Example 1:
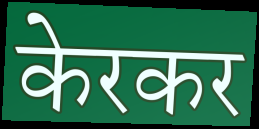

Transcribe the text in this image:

केरकर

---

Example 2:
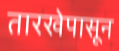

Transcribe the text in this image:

तारखेपासून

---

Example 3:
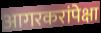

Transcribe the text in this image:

आगरकरांपेक्षा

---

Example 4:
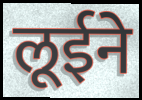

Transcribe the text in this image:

लूईने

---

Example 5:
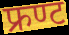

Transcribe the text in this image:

फ्रण्ट